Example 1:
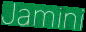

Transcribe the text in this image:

Jamini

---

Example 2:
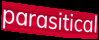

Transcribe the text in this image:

parasitical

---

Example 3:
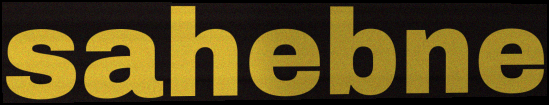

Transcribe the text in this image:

sahebne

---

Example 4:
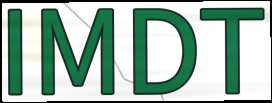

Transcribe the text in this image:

IMDT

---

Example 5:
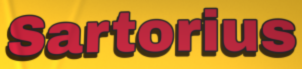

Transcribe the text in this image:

Sartorius